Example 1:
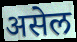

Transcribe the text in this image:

असेल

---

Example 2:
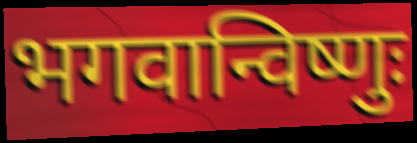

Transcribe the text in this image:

भगवान्विष्णुः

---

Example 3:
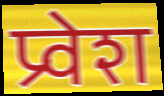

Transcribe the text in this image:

प्र्वेश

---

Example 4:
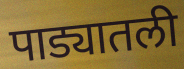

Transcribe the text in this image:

पाड्यातली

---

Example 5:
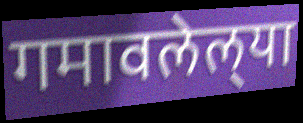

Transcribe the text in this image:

गमावलेल्या